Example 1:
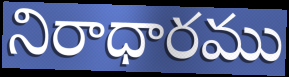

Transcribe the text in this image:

నిరాధారము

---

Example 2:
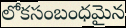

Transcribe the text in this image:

లోకసంబంధమైన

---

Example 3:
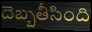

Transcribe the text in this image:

దెబ్బతీసింది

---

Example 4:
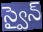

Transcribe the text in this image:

స్వైన్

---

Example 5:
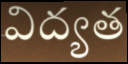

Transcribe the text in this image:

విద్యత